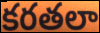
కరతలా